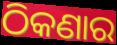
ଠିକଣାର